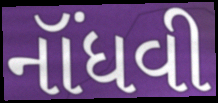
નૉંધવી